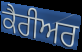
ਕੈਰੀਅਰ